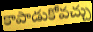
కాపాడుకోవచ్చు